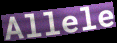
Allele